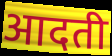
आदती